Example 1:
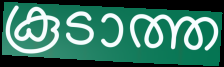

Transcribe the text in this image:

കൂടാത്ത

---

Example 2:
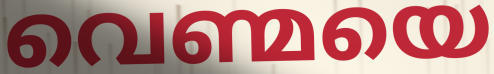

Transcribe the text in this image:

വെണ്മയെ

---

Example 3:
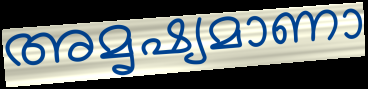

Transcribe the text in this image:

അമൃഷ്യമാണാ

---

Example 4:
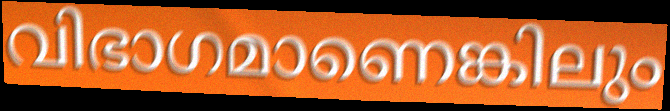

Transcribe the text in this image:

വിഭാഗമാണെങ്കിലും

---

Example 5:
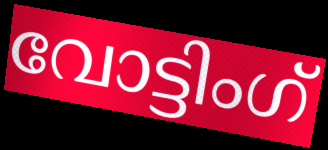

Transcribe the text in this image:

വോട്ടിംഗ്